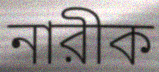
নারীক